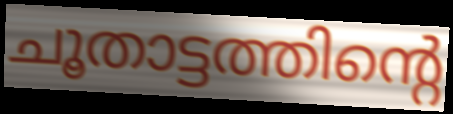
ചൂതാട്ടത്തിന്റെ